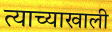
त्याच्याखाली